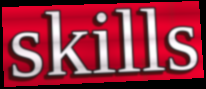
skills